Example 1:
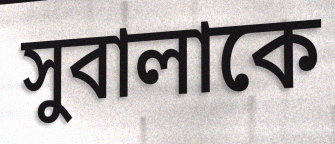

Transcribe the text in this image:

সুবালাকে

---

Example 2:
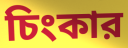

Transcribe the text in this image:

চিংকার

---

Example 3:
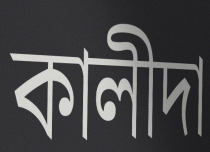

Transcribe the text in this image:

কালীদা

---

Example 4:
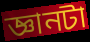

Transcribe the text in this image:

জ্ঞানটা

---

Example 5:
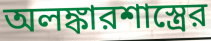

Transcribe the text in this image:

অলঙ্কারশাস্ত্রের